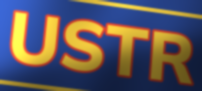
USTR